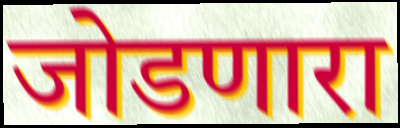
जोडणारा